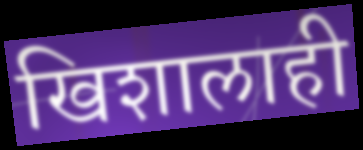
खिशालाही